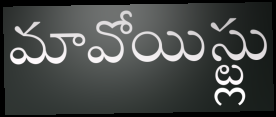
మావోయిస్ట్లు